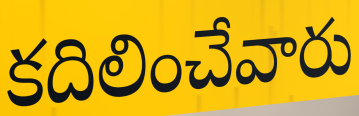
కదిలించేవారు